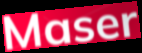
Maser